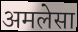
अमलेसा